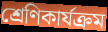
শ্রেণিকার্যক্রম